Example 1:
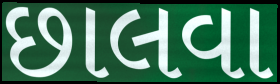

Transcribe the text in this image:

છાલવા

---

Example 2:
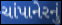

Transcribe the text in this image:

ચાંપાનેરનું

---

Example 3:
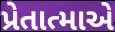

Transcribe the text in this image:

પ્રેતાત્માએ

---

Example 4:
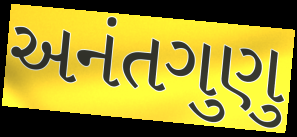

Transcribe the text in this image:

અનંતગુણુ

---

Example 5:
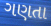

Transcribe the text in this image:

ગણતા